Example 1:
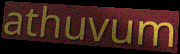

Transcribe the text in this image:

athuvum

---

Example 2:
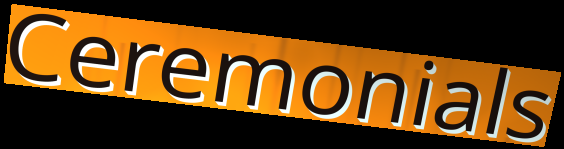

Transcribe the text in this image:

Ceremonials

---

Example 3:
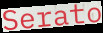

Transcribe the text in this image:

Serato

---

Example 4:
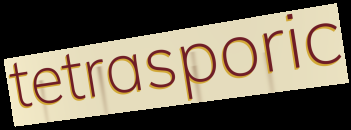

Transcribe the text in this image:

tetrasporic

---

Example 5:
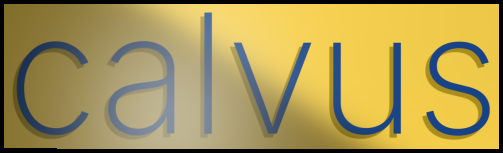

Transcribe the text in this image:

calvus